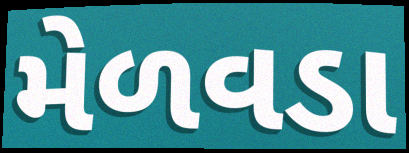
મેળવડા